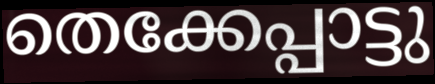
തെക്കേപ്പാട്ടു